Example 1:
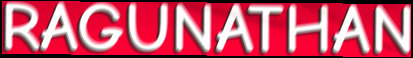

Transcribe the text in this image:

RAGUNATHAN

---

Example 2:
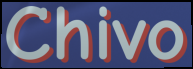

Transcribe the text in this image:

Chivo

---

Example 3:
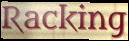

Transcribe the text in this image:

Racking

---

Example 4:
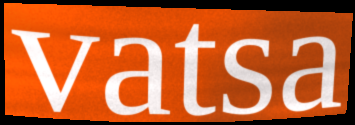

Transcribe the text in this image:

vatsa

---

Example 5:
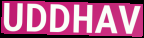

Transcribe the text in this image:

UDDHAV